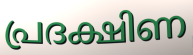
പ്രദക്ഷിണ